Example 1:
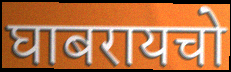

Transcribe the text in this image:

घाबरायचो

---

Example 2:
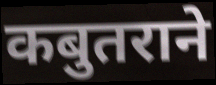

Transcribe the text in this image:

कबुतराने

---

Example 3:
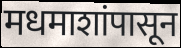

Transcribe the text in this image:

मधमाशांपासून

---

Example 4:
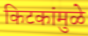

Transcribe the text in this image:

किटकांमुळे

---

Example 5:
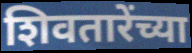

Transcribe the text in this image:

शिवतारेंच्या